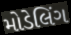
મોડેલિંગ